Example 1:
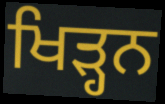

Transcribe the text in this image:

ਖਿੜ੍ਹਨ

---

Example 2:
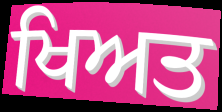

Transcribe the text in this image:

ਖਿਅਤ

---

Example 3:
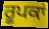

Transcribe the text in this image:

ਰੂਪਕਾਂ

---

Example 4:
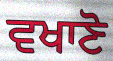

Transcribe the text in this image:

ਵਖਾਣੋ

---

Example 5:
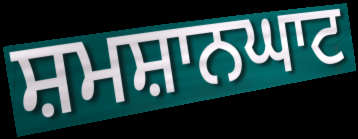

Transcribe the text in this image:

ਸ਼ਮਸ਼ਾਨਘਾਟ